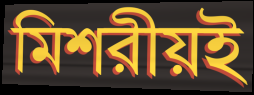
মিশরীয়ই